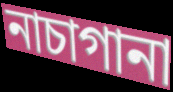
নাচাগানা